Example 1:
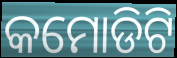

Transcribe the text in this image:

କମୋଡିଟି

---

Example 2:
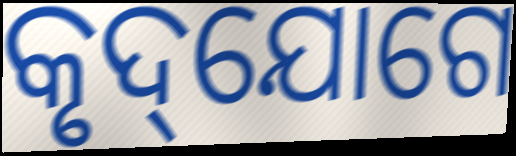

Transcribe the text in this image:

କୃଦ୍‌ଯୋଗେ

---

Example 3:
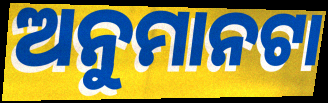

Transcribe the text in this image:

ଅନୁମାନଟା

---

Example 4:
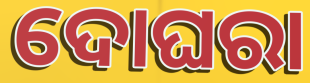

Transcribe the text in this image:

ଦୋଘରା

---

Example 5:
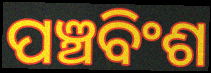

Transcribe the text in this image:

ପଞ୍ଚବିଂଶ